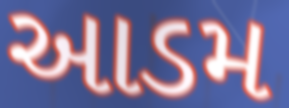
આડમ